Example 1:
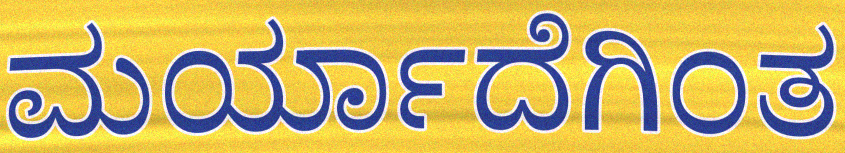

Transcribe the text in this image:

ಮರ್ಯಾದೆಗಿಂತ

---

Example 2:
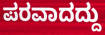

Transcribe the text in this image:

ಪರವಾದದ್ದು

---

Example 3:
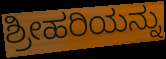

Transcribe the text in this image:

ಶ್ರೀಹರಿಯನ್ನು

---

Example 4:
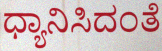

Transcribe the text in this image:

ಧ್ಯಾನಿಸಿದಂತೆ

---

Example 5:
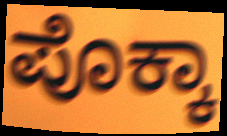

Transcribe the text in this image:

ಪೊಕ್ಕಾ